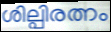
ശില്പിരത്നം